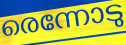
രെന്നോടു